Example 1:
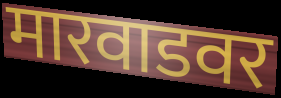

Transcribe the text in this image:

मारवाडवर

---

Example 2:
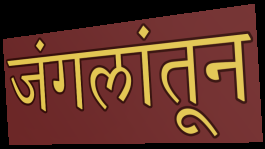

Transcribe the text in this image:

जंगलांतून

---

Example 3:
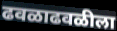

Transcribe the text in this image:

ढवळाढवळीला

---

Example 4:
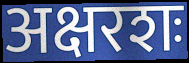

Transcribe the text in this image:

अक्षरशः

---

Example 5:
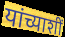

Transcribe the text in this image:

यांच्याशीं